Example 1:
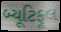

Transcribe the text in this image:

બ્યૂટિફૂલ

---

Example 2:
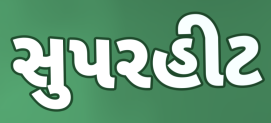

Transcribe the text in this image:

સુપરહીટ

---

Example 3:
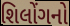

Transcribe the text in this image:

શિલોંગનો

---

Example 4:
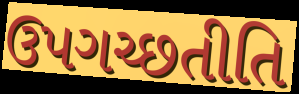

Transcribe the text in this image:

ઉપગચ્છતીતિ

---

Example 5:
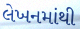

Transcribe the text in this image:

લેખનમાંથી